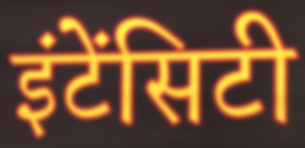
इंटेंसिटी